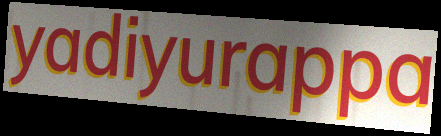
yadiyurappa